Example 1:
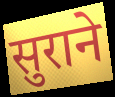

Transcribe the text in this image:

सुराने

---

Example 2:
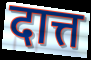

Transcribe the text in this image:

दात्त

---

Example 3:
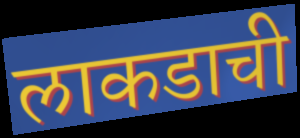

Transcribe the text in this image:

लाकडाची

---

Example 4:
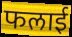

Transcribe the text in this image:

फलाई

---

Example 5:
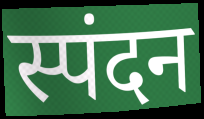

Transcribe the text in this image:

स्पंदन